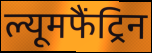
ल्यूमफैंट्रिन